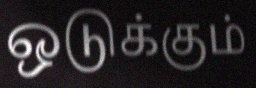
ஒடுக்கும்